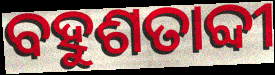
ବହୁଶତାବ୍ଦୀ